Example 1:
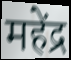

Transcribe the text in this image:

महेंद्र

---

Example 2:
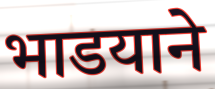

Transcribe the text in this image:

भाडयाने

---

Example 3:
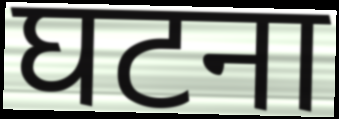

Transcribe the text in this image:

घटना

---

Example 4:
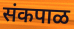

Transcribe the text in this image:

संकपाळ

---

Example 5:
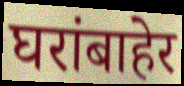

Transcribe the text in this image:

घरांबाहेर